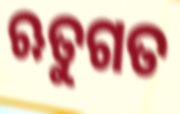
ଋତୁଗତ